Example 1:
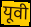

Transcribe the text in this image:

यूवी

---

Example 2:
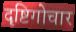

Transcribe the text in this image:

दृष्टिगोचार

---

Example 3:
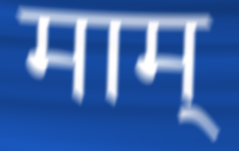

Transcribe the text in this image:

माम्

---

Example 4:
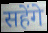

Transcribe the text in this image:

सहेंगे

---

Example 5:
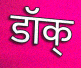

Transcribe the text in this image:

डॉक्